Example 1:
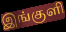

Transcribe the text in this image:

இங்குளி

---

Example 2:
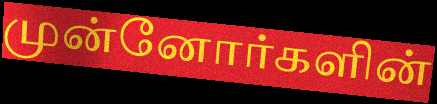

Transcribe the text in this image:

முன்னோர்களின்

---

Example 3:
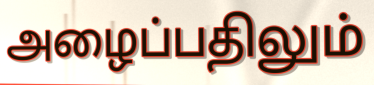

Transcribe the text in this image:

அழைப்பதிலும்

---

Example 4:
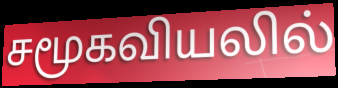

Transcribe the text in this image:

சமூகவியலில்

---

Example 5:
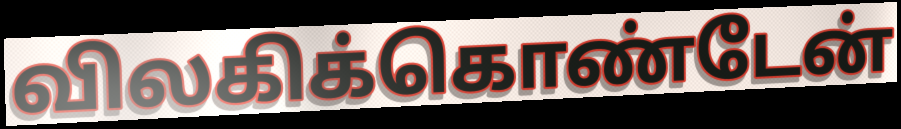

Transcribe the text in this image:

விலகிக்கொண்டேன்